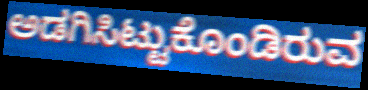
ಅಡಗಿಸಿಟ್ಟುಕೊಂಡಿರುವ